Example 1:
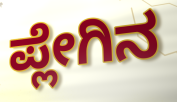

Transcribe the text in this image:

ಪ್ಲೇಗಿನ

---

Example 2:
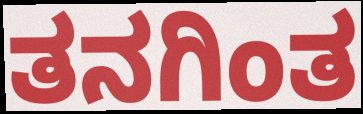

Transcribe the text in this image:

ತನಗಿಂತ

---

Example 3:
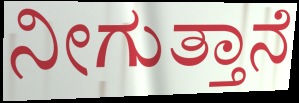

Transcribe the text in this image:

ನೀಗುತ್ತಾನೆ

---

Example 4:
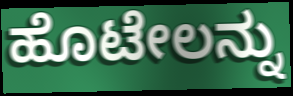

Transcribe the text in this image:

ಹೊಟೇಲನ್ನು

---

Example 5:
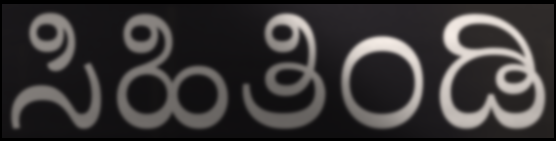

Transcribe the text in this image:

ಸಿಹಿತಿಂಡಿ